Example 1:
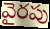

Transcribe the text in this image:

వైరపు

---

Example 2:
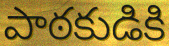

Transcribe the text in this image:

పాఠకుడికి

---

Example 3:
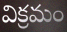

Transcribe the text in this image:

విక్రమం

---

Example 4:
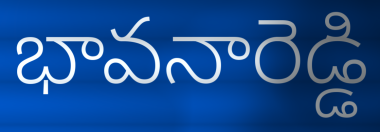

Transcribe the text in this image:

భావనారెడ్డి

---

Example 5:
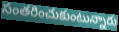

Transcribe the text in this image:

సంతరించుకుంటున్నారు